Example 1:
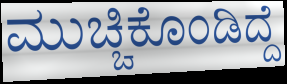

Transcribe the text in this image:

ಮುಚ್ಚಿಕೊಂಡಿದ್ದೆ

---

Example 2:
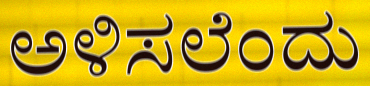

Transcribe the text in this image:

ಅಳಿಸಲೆಂದು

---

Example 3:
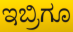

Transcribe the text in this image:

ಇಬ್ರಿಗೂ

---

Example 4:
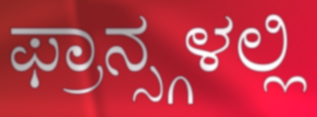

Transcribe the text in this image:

ಫ್ರಾನ್ಸ್ಗಳಲ್ಲಿ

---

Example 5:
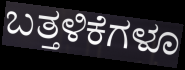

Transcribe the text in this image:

ಬತ್ತಳಿಕೆಗಳೂ